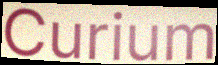
Curium